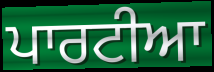
ਪਾਰਟੀਆ